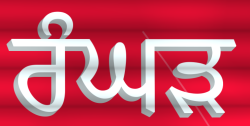
ਰੰਘੜ